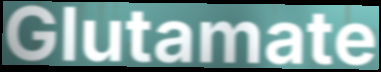
Glutamate